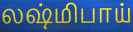
லஷ்மிபாய்